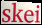
skei